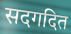
सदगदित